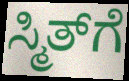
ಸ್ಮಿತ್‌ಗೆ